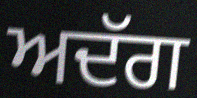
ਅਦੱਗ